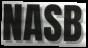
NASB